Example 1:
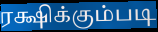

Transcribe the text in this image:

ரக்ஷிக்கும்படி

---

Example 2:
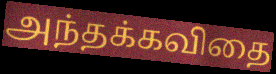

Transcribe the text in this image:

அந்தக்கவிதை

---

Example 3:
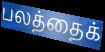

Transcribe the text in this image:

பலத்தைக்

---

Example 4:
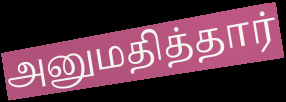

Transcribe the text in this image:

அனுமதித்தார்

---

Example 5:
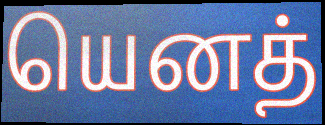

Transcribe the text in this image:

யெனத்